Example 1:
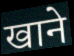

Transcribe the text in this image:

खाने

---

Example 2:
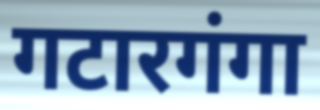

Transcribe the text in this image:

गटारगंगा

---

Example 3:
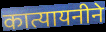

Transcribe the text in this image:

कात्यायनीने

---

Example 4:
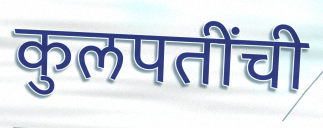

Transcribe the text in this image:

कुलपतींची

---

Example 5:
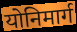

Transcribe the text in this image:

योनिमार्ग